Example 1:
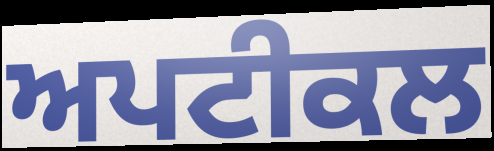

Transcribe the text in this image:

ਅਪਟੀਕਲ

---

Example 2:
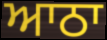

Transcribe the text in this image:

ਆਠਾ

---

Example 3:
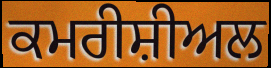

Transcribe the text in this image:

ਕਮਰੀਸ਼ੀਅਲ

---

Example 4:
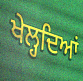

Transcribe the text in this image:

ਖੇਲ੍ਹਦਿਆਂ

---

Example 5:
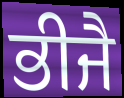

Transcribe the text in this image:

ਭੀਜੈ